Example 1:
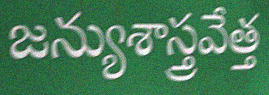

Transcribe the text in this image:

జన్యుశాస్త్రవేత్త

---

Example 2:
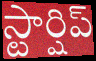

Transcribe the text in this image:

స్టార్షిప్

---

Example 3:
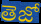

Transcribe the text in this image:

తెజో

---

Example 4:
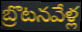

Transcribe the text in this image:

బ్రొటనవేళ్ల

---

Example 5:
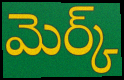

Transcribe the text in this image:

మెర్క్